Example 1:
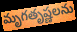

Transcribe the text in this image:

మృగతృష్ణలను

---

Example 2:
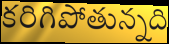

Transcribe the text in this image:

కరిగిపోతున్నది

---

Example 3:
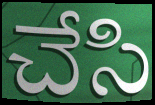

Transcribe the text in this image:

చేసి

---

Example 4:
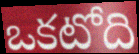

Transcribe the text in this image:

ఒకటోది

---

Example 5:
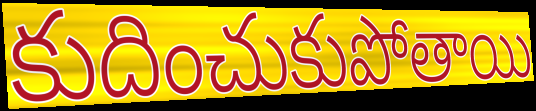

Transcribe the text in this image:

కుదించుకుపోతాయి